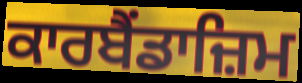
ਕਾਰਬੈਂਡਾਜ਼ਿਮ